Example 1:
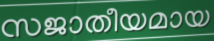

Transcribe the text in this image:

സജാതീയമായ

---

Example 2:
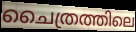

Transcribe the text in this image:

ചൈത്രത്തിലെ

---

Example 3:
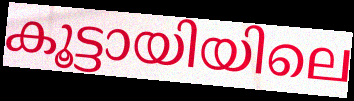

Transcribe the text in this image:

കൂട്ടായിയിലെ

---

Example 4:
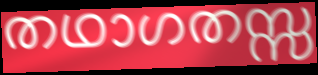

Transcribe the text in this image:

തഥാഗതസ്സ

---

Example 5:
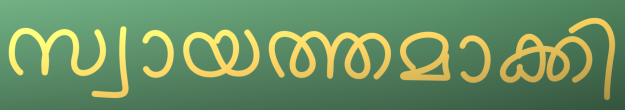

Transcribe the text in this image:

സ്വായത്തമാക്കി